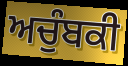
ਅਚੁੰਬਕੀ